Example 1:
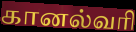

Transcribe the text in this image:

கானல்வரி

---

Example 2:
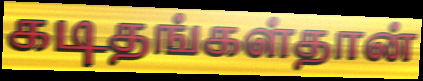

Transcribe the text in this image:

கடிதங்கள்தான்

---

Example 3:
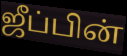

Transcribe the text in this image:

ஜீப்பின்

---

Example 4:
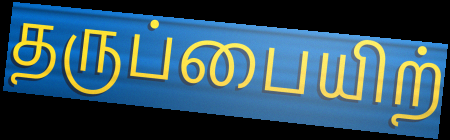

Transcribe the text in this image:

தருப்பையிற்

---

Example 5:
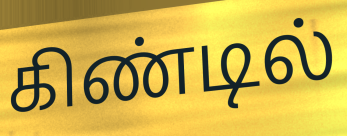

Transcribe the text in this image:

கிண்டில்